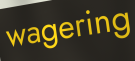
wagering